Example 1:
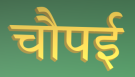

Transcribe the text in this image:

चौपई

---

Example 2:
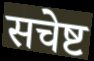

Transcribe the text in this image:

सचेष्ट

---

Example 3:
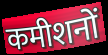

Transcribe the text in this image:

कमीशनों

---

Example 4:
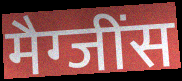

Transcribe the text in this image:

मैग्जींस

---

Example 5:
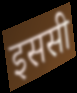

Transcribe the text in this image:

इससी